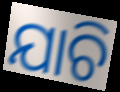
ଯାଚି